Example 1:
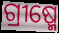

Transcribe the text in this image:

ଗ୍ରୀଷ୍ମେ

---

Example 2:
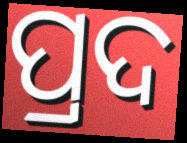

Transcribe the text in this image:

ପ୍ରଦ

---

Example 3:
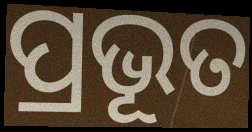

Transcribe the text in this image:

ପ୍ରଭୂତ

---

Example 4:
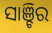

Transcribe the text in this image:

ସାଞ୍ଚିର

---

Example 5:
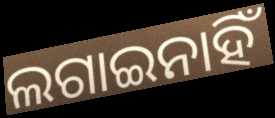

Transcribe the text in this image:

ଲଗାଇନାହିଁ